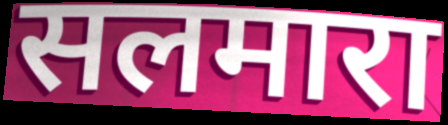
सलमारा